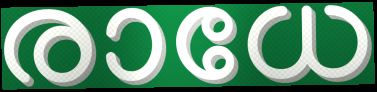
രാധേ